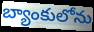
బ్యాంకులోను